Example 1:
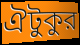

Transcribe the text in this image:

ঐটুকুর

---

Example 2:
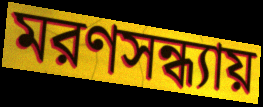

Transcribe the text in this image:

মরণসন্ধ্যায়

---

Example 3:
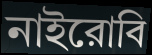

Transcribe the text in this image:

নাইরোবি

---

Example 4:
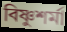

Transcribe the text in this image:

বিষ্ণুশর্মা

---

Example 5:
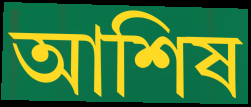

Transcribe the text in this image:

আশিষ